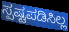
ಸ್ಪಷ್ಟಪಡಿಸಿಲ್ಲ